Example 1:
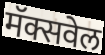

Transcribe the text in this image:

मॅक्सवेल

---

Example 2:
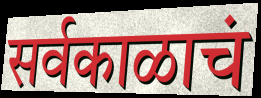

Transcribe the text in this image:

सर्वकाळाचं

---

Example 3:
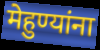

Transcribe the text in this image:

मेहुण्यांना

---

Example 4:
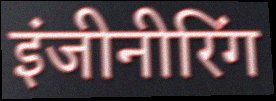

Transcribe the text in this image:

इंजीनीरिंग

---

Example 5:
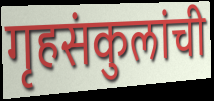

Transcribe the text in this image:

गृहसंकुलांची